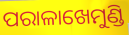
ପରାଳାଖେମୁଣ୍ଡି